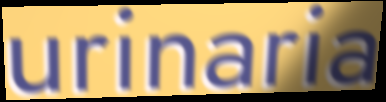
urinaria